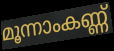
മൂന്നാംകണ്ണ്